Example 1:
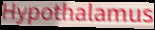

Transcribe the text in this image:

Hypothalamus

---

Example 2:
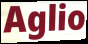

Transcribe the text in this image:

Aglio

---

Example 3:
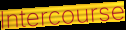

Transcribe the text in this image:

Intercourse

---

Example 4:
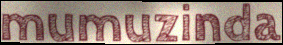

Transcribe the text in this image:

mumuzinda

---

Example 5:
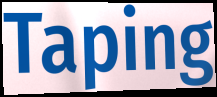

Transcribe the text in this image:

Taping